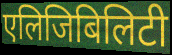
एलिजिबिलिटी